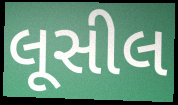
લૂસીલ